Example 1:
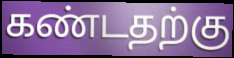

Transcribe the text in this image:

கண்டதற்கு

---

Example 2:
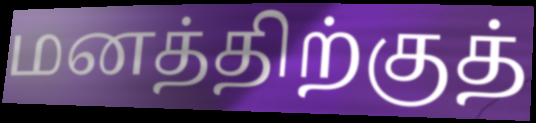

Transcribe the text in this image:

மனத்திற்குத்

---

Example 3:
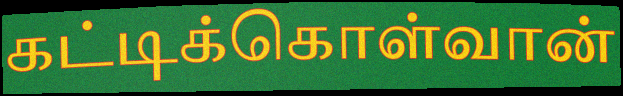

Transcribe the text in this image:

கட்டிக்கொள்வான்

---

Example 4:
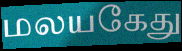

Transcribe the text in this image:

மலயகேது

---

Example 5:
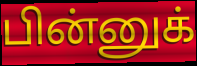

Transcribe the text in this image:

பின்னுக்